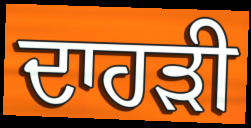
ਦਾਹੜੀ